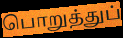
பொறுத்துப்